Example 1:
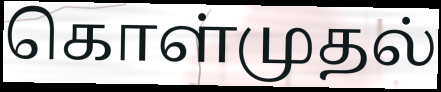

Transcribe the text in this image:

கொள்முதல்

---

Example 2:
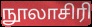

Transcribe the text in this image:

நூலாசிரி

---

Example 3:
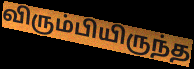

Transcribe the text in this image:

விரும்பியிருந்த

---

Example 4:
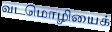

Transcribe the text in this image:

வடமொழியைக்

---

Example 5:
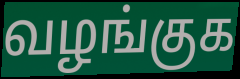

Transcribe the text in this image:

வழங்குக